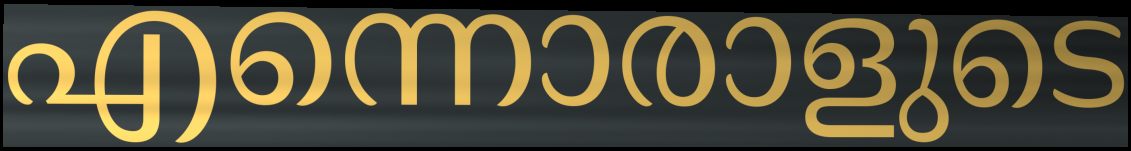
എന്നൊരാളുടെ